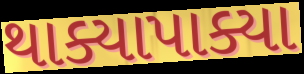
થાક્યાપાક્યા